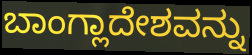
ಬಾಂಗ್ಲಾದೇಶವನ್ನು